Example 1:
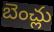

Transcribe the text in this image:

బెంచ్లు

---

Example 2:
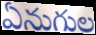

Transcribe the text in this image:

ఏనుగుల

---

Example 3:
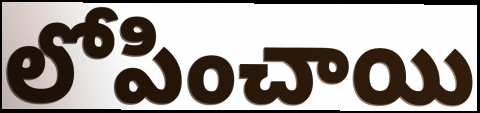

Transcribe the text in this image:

లోపించాయి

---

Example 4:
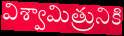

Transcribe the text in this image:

విశ్వామిత్రునికి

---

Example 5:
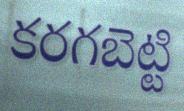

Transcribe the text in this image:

కరగబెట్టి